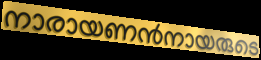
നാരായണൻനായരുടെ